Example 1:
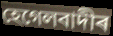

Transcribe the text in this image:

হেগেলবাদীৰ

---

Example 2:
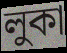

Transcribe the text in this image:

লুকা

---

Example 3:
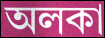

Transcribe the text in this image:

অলকা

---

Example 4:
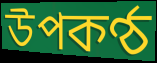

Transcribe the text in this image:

উপকণ্ঠ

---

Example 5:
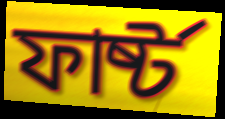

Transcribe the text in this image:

ফাৰ্ষ্ট